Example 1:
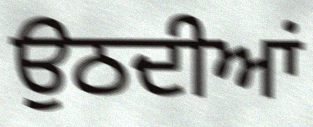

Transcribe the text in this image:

ਉਠਦੀਆਂ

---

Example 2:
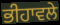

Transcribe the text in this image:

ਭੀਹਾਵਲੇ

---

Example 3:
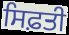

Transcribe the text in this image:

ਸਿਫ਼ਤੀ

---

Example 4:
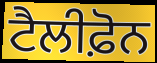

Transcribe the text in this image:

ਟੈਲੀਫ਼ੋਨ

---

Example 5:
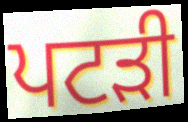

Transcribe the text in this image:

ਪਟੜੀ